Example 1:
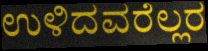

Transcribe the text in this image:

ಉಳಿದವರೆಲ್ಲರ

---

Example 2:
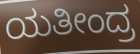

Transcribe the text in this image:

ಯತೀಂದ್ರ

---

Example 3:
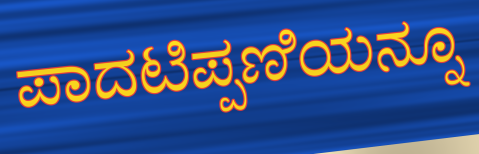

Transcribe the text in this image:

ಪಾದಟಿಪ್ಪಣಿಯನ್ನೂ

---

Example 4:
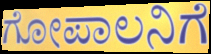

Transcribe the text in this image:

ಗೋಪಾಲನಿಗೆ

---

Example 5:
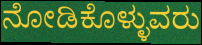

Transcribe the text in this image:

ನೋಡಿಕೊಳ್ಳುವರು